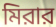
মিরার